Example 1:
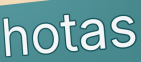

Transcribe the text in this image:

hotas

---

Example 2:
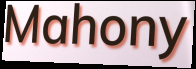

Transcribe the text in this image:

Mahony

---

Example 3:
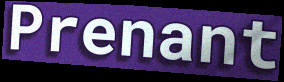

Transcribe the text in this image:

Prenant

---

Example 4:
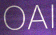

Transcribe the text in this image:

OAI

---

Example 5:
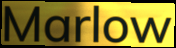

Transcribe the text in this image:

Marlow